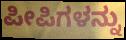
ಪೀಪಿಗಳನ್ನು